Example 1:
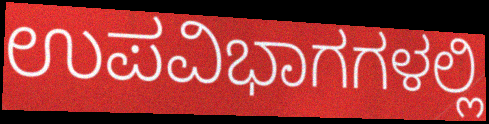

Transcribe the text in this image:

ಉಪವಿಭಾಗಗಳಲ್ಲಿ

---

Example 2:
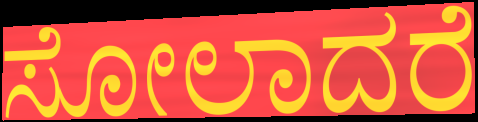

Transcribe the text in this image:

ಸೋಲಾದರೆ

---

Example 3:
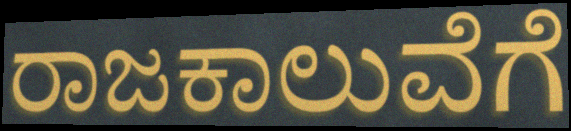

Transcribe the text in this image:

ರಾಜಕಾಲುವೆಗೆ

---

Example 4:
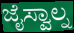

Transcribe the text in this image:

ಜೈಸ್ವಾಲ್ನ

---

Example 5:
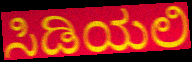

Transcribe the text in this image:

ಸಿಡಿಯಲಿ